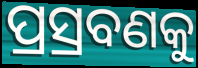
ପ୍ରସ୍ରବଣକୁ